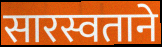
सारस्वताने